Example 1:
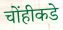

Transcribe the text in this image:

चोंहीकडे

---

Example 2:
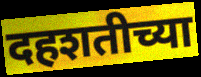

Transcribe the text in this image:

दहशतीच्या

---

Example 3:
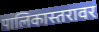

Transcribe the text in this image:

पालिकास्तरावर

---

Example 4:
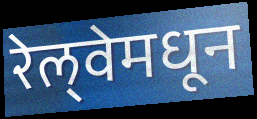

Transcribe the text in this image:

रेल्वेमधून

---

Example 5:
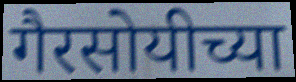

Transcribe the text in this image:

गैरसोयीच्या